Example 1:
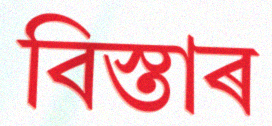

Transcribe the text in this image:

বিস্তাৰ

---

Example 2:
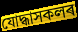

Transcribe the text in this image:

যোদ্ধাসকলৰ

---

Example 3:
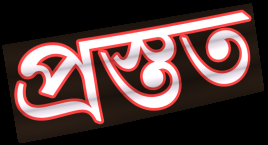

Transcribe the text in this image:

প্ৰস্তত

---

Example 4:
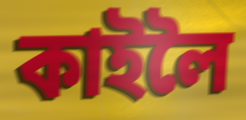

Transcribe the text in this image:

কাইলৈ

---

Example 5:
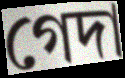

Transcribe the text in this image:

গেদা